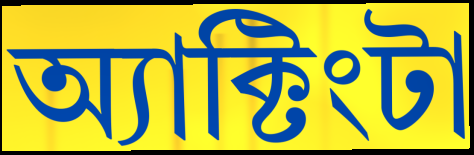
অ্যাক্টিংটা